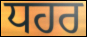
ਧਹਰ